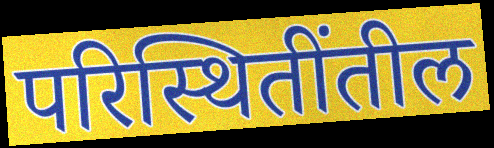
परिस्थितींतील